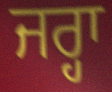
ਜਰ੍ਹਾ